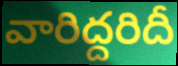
వారిద్దరిదీ